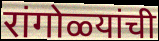
रांगोळ्यांची